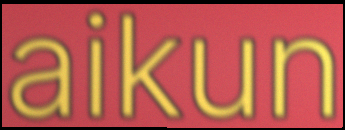
aikun